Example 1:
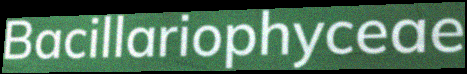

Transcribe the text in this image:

Bacillariophyceae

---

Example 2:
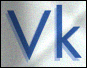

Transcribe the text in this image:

Vk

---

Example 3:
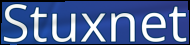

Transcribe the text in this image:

Stuxnet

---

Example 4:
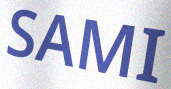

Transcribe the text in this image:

SAMI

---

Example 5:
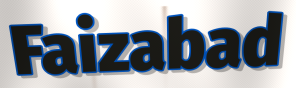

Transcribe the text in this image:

Faizabad